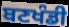
ਬਣਖੰਡੀ